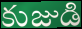
కుజుడి